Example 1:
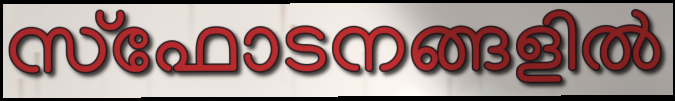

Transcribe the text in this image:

സ്ഫോടനങ്ങളിൽ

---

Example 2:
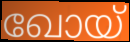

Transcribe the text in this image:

ഖോയ്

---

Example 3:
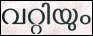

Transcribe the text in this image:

വറ്റിയും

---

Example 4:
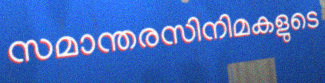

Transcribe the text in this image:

സമാന്തരസിനിമകളുടെ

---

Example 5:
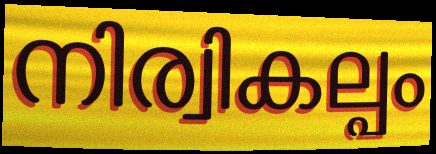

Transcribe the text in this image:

നിര്വികല്പം